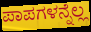
ಪಾಪಗಳನ್ನೆಲ್ಲ